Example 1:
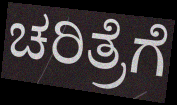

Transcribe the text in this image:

ಚರಿತ್ರೆಗೆ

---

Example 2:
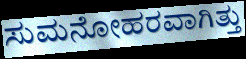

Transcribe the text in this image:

ಸುಮನೋಹರವಾಗಿತ್ತು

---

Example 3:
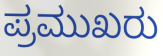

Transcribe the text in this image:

ಪ್ರಮುಖರು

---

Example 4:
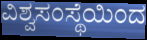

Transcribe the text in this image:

ವಿಶ್ವಸಂಸ್ಥೆಯಿಂದ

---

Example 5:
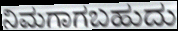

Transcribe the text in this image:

ನಿಮಗಾಗಬಹುದು